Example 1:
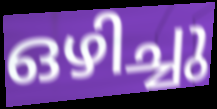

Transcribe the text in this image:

ഒഴിച്ചു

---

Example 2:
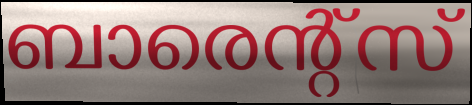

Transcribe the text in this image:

ബാരെന്റ്സ്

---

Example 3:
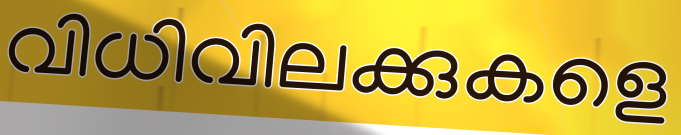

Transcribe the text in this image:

വിധിവിലക്കുകളെ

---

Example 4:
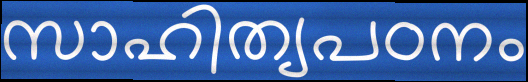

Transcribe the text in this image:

സാഹിത്യപഠനം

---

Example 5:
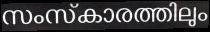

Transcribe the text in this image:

സംസ്‌കാരത്തിലും